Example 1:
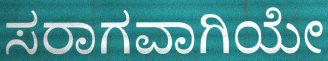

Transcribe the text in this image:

ಸರಾಗವಾಗಿಯೇ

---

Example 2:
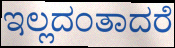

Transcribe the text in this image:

ಇಲ್ಲದಂತಾದರೆ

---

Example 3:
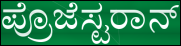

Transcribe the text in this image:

ಪ್ರೊಜೆಸ್ಟರಾನ್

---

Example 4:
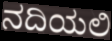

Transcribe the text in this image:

ನದಿಯಲಿ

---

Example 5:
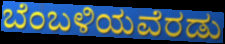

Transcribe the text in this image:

ಬೆಂಬಳಿಯವೆರಡು